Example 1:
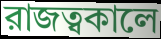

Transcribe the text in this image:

রাজত্বকালে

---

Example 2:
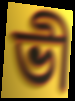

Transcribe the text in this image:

ভী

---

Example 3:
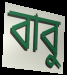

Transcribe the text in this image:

বাবু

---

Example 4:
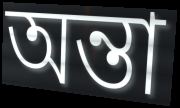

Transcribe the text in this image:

অন্তা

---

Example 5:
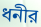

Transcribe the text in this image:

ধনীর